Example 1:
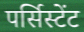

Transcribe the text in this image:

पर्सिस्टेंट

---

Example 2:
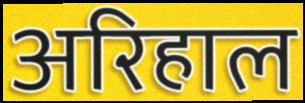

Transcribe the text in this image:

अरिहाल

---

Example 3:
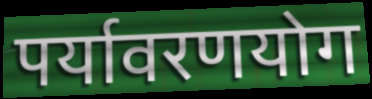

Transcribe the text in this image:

पर्यावरणयोग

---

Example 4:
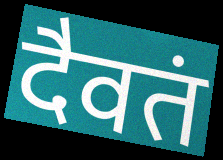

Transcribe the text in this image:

दैवतं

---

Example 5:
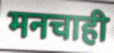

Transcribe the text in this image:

मनचाही